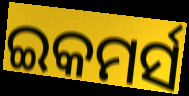
ଇକମର୍ସ